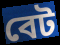
বেট